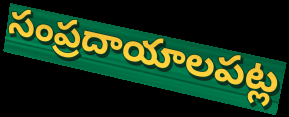
సంప్రదాయాలపట్ల